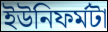
ইউনিফর্মটা